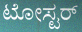
ಟೋಸ್ಟರ್